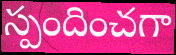
స్పందించగా